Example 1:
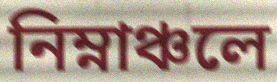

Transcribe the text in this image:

নিম্নাঞ্চলে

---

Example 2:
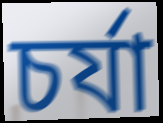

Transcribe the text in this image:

চর্যা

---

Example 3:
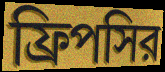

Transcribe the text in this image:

ফ্রিপসির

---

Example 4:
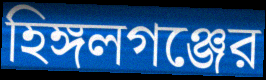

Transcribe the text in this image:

হিঙ্গলগঞ্জের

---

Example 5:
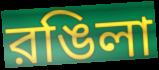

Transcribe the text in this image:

রঙিলা